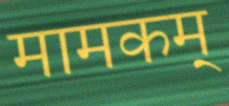
मामकम्